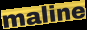
maline